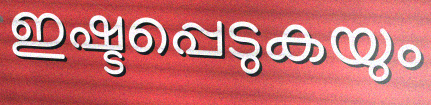
ഇഷ്ടപ്പെടുകയും